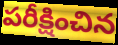
పరీక్షించిన